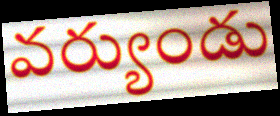
వర్యుండు